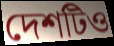
দেশটিও